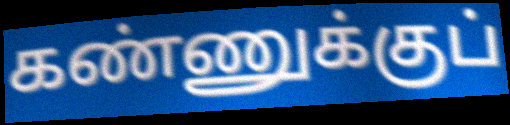
கண்ணுக்குப்